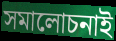
সমালোচনাই